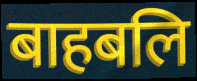
बाहबलि